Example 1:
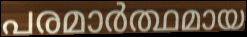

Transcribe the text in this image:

പരമാർത്ഥമായ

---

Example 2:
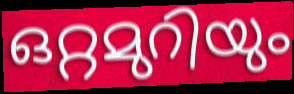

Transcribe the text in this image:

ഒറ്റമുറിയും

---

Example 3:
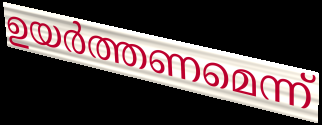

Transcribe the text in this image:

ഉയർത്തണമെന്ന്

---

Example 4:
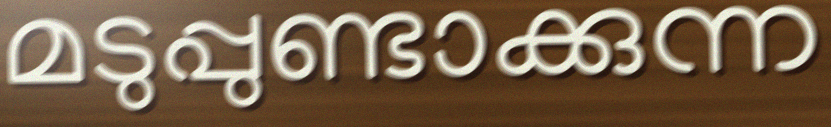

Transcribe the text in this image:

മടുപ്പുണ്ടാക്കുന്ന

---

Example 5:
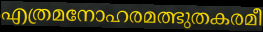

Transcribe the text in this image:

എത്രമനോഹരമത്ഭുതകരമീ